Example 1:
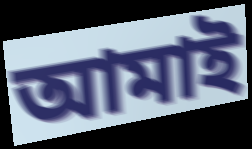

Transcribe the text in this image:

আমাই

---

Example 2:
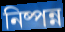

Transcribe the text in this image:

নিষ্পন্ন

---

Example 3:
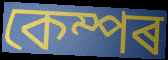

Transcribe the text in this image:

কেম্পৰ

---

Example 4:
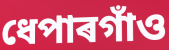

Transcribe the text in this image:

ধেপাৰগাঁও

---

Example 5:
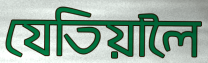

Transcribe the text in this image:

যেতিয়ালৈ